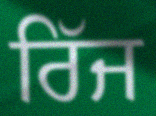
ਰਿੱਜ